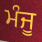
ਮੰਜੂ